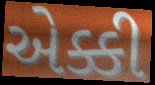
એક્કી